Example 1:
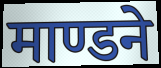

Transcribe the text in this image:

माण्डने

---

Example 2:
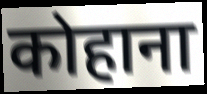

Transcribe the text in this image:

कोहाना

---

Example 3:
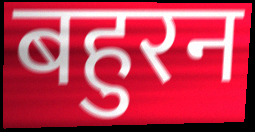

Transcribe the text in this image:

बहुरन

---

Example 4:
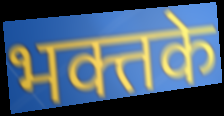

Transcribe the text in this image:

भक्तके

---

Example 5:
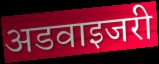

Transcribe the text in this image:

अडवाइजरी